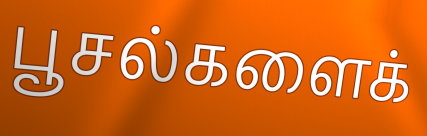
பூசல்களைக்